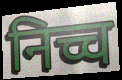
निच्च